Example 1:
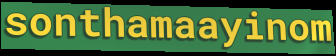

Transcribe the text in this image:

sonthamaayinom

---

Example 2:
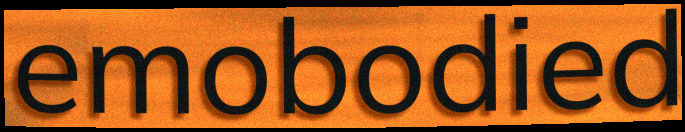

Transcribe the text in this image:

emobodied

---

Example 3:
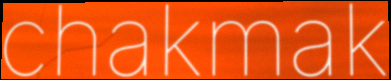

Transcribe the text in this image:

chakmak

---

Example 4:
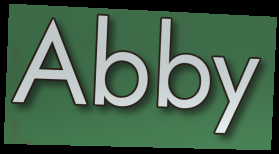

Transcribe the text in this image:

Abby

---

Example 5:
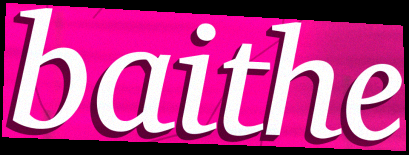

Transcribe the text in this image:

baithe